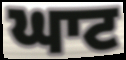
ਘਾਟ